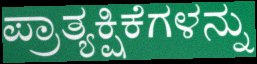
ಪ್ರಾತ್ಯಕ್ಷಿಕೆಗಳನ್ನು